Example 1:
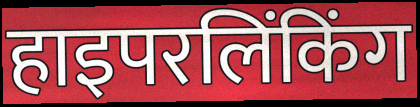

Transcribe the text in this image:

हाइपरलिंकिंग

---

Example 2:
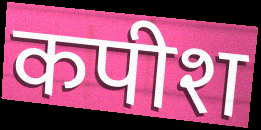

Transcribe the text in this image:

कपीश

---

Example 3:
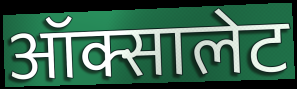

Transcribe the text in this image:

ऑक्सालेट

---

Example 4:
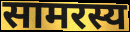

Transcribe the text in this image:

सामरस्य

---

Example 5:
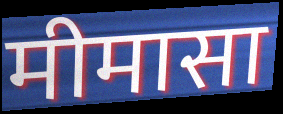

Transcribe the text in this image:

मीमासा